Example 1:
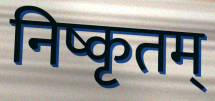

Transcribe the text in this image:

निष्कृतम्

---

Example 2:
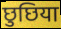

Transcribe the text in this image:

छुछिया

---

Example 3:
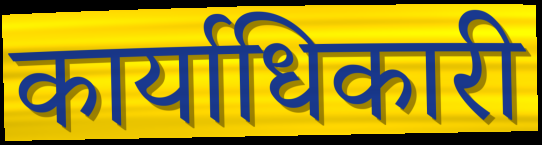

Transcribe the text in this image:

कार्याधिकारी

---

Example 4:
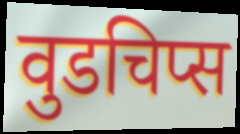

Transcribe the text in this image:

वुडचिप्स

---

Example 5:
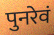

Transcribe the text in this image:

पुनरेवं